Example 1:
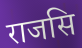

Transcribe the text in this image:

राजसि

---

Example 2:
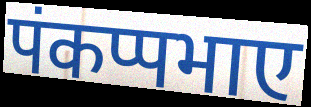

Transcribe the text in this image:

पंकप्पभाए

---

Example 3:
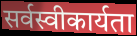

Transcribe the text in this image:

सर्वस्वीकार्यता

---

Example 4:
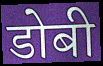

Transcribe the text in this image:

डोबी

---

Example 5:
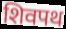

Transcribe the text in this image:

शिवपथ